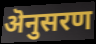
ऄनुसरण